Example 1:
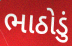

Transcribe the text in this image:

ભાઠોડું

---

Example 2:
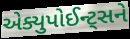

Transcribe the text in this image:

એક્યુપોઈન્ટ્સને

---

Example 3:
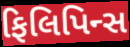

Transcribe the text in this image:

ફિલિપિન્સ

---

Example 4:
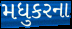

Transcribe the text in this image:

મધુકરના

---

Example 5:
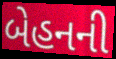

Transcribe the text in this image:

બેહનની